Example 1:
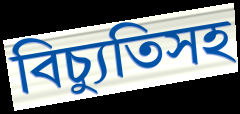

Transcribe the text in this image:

বিচ্যুতিসহ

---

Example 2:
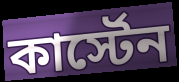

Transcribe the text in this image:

কার্স্টেন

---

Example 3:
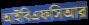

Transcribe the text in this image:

আইবিএফসিআর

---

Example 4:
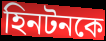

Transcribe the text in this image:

হিনটনকে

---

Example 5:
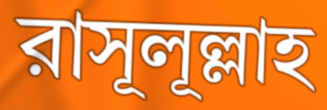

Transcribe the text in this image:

রাসূলূল্লাহ